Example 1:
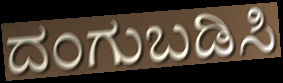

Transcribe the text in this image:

ದಂಗುಬಡಿಸಿ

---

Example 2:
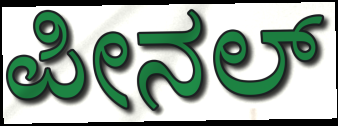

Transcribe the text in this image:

ಪೀನಲ್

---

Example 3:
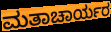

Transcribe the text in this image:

ಮತಾಚಾರ್ಯರ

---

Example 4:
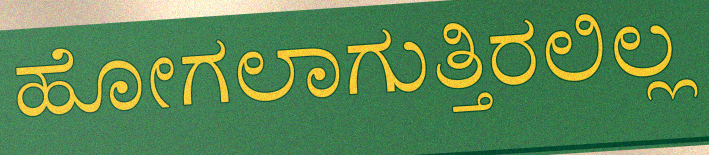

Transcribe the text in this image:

ಹೋಗಲಾಗುತ್ತಿರಲಿಲ್ಲ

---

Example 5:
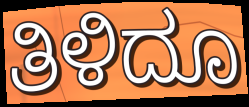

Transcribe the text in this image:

ತಿಳಿದೂ